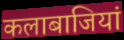
कलाबाजियां